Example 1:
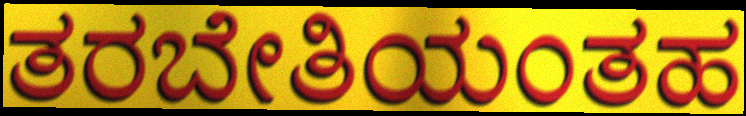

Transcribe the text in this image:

ತರಬೇತಿಯಂತಹ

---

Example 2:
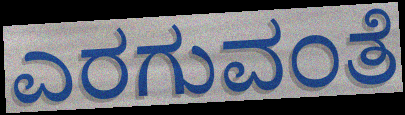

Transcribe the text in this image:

ಎರಗುವಂತೆ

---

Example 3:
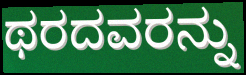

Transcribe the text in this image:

ಥರದವರನ್ನು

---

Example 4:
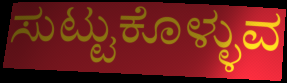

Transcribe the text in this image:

ಸುಟ್ಟುಕೊಳ್ಳುವ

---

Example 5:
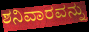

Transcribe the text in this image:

ಶನಿವಾರವನ್ನು